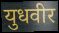
युधवीर